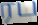
ரப